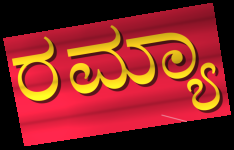
ರಮ್ಯಾ